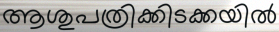
ആശുപത്രിക്കിടക്കയിൽ